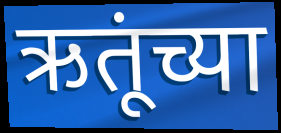
ऋतूंच्या